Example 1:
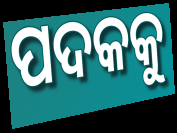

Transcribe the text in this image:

ପଦକକୁ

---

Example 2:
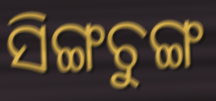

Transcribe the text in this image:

ସିଙ୍ଗଚୁଙ୍ଗ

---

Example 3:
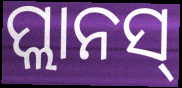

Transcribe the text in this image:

ପ୍ଲାନସ୍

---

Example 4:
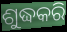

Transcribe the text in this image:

ଶୁଦ୍ଧକରି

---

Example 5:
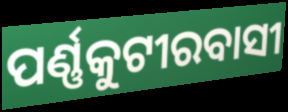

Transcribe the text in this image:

ପର୍ଣ୍ଣକୁଟୀରବାସୀ